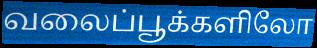
வலைப்பூக்களிலோ